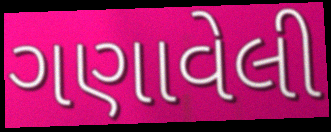
ગણાવેલી